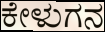
ಕೇಳುಗನ